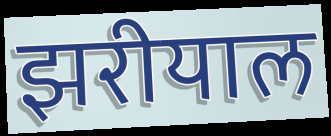
झरीयाल